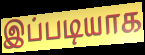
இப்படியாக